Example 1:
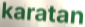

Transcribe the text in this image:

karatan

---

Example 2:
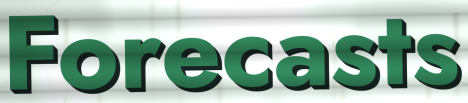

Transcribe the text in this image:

Forecasts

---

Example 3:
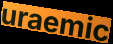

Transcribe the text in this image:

uraemic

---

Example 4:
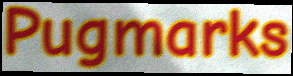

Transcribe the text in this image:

Pugmarks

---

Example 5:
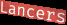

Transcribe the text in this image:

Lancers